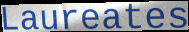
Laureates